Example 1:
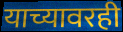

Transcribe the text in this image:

याच्यावरही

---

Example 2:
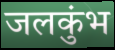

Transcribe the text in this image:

जलकुंभ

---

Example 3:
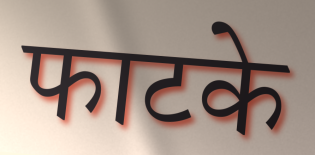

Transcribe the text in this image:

फाटके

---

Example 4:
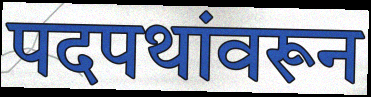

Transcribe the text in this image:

पदपथांवरून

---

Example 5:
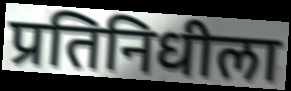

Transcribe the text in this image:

प्रतिनिधीला